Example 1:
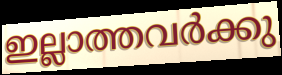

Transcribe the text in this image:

ഇല്ലാത്തവർക്കു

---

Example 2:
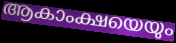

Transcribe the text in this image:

ആകാംക്ഷയെയും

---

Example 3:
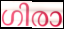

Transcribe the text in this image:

ഗിരാ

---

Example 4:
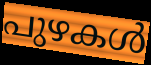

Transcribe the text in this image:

പുഴകൾ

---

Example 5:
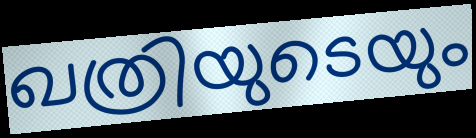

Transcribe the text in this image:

ഖത്രിയുടെയും